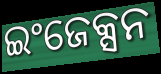
ଇଂଜେକ୍ସନ